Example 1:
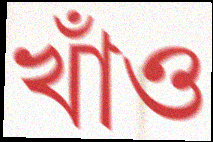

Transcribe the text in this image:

খাঁও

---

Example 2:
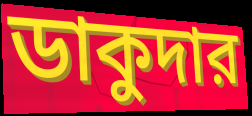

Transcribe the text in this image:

ডাকুদার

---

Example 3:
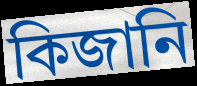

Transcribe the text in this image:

কিজানি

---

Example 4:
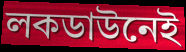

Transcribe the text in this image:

লকডাউনেই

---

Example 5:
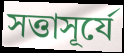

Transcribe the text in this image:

সত্তাসূর্যে